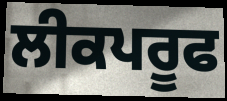
ਲੀਕਪਰੂਫ